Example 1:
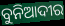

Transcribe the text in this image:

ବୁନିଆଦୀର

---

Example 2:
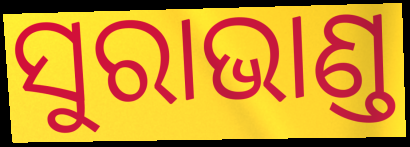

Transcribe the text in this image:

ସୁରାଭାଣ୍ଡ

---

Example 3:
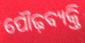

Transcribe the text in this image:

ପୌଢ଼ବ୍ୟକ୍ତି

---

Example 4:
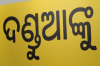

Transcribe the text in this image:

ଦଣ୍ଡୁଆଙ୍କୁ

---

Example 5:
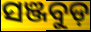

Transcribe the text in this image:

ସଞ୍ଜବୁଡ଼